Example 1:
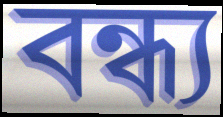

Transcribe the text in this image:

বন্ধ্য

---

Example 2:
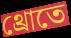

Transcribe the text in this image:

থ্রোতে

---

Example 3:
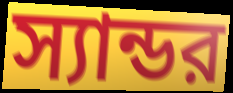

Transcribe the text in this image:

স্যান্ডর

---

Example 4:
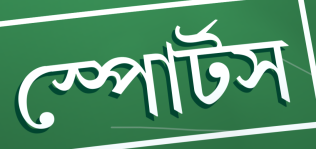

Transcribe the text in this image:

স্পোর্টস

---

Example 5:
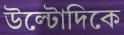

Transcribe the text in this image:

উল্টোদিকে